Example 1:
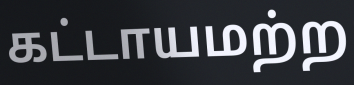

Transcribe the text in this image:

கட்டாயமற்ற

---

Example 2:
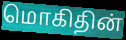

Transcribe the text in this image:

மொகிதின்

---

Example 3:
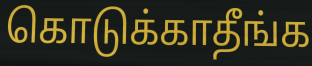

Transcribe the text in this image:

கொடுக்காதீங்க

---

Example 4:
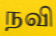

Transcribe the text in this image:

நவி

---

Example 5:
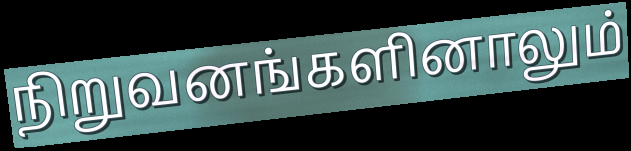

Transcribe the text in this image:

நிறுவனங்களினாலும்